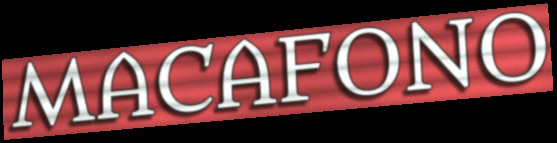
MACAFONO